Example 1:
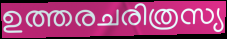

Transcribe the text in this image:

ഉത്തരചരിത്രസ്യ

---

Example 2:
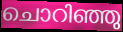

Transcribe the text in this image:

ചൊറിഞ്ഞു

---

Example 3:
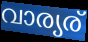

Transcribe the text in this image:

വാര്യര്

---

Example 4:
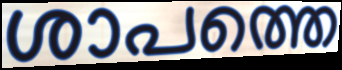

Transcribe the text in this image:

ശാപത്തെ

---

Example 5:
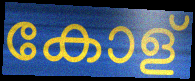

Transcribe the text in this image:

കോള്